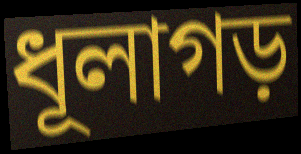
ধূলাগড়